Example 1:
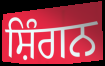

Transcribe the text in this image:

ਸ਼ਿੰਗਨ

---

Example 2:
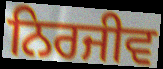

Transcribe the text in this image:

ਨਿਰਜੀਵ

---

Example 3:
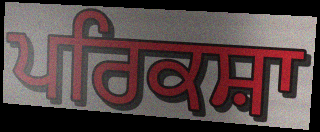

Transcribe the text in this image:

ਪਰਿਕਸ਼ਾ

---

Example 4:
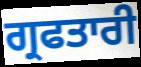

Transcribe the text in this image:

ਗ੍ਰਫਤਾਰੀ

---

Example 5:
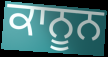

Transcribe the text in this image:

ਕਾਨੂਨ